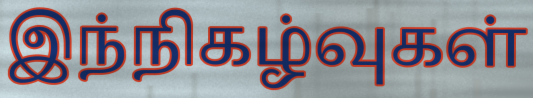
இந்நிகழ்வுகள்